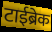
टाईब्रेक